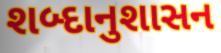
શબ્દાનુશાસન